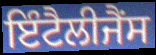
ਇੰਟੈਲੀਜੈਂਸ